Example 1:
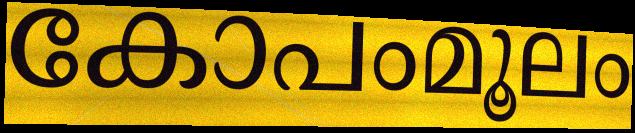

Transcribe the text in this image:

കോപംമൂലം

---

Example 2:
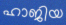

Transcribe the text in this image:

ഹാജിയ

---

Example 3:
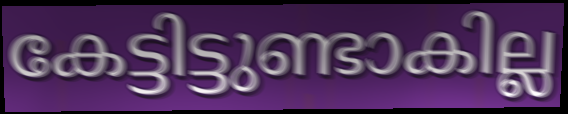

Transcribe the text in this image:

കേട്ടിട്ടുണ്ടാകില്ല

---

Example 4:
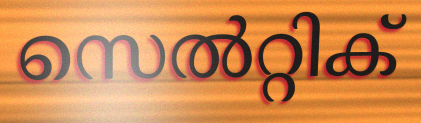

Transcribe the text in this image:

സെൽറ്റിക്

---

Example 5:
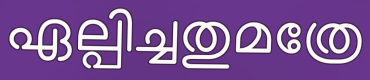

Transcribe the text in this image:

ഏല്പിച്ചതുമത്രേ